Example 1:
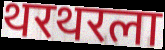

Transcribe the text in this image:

थरथरला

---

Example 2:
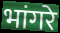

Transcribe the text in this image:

भांगरे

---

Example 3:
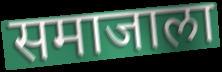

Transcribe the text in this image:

समाजाला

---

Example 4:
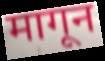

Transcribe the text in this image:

मागून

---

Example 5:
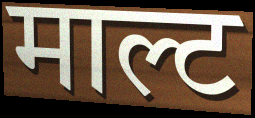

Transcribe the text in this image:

माल्ट